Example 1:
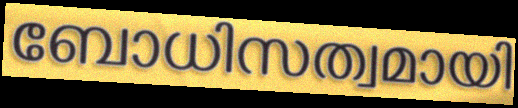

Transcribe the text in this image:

ബോധിസത്വമായി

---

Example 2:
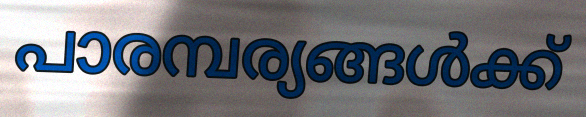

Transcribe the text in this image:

പാരമ്പര്യങ്ങൾക്ക്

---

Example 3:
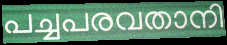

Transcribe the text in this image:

പച്ചപരവതാനി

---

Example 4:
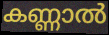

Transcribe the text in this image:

കണ്ണാൽ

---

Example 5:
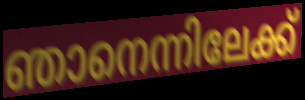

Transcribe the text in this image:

ഞാനെന്നിലേക്ക്